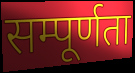
सम्पूर्णता